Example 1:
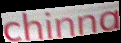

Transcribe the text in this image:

chinna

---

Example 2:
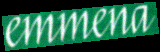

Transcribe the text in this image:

emmena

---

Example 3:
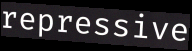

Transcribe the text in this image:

repressive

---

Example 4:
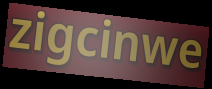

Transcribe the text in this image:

zigcinwe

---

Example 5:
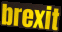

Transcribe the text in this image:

brexit